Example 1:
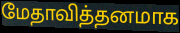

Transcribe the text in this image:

மேதாவித்தனமாக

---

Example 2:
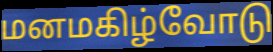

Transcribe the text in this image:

மனமகிழ்வோடு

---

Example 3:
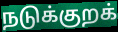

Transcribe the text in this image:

நடுக்குறக்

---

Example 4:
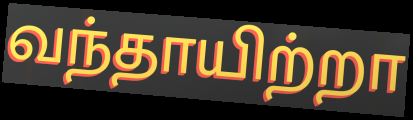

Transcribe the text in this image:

வந்தாயிற்றா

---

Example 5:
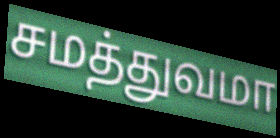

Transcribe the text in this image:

சமத்துவமா